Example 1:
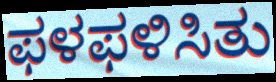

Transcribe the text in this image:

ಫಳಫಳಿಸಿತು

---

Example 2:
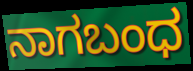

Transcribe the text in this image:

ನಾಗಬಂಧ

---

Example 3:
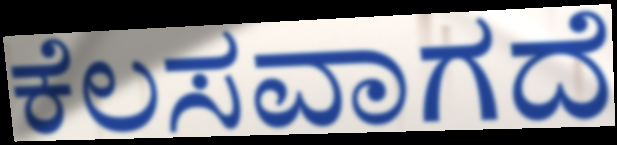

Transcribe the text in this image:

ಕೆಲಸವಾಗದೆ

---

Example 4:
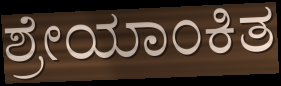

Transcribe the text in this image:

ಶ್ರೇಯಾಂಕಿತ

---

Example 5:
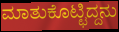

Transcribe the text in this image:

ಮಾತುಕೊಟ್ಟಿದ್ದನು